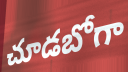
చూడబోగా